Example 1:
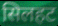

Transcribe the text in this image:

सिलहट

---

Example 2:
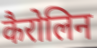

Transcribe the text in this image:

कैरोलिन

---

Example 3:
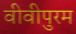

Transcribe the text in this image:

वीवीपुरम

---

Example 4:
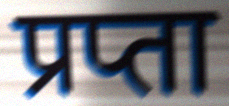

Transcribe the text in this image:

प्रप्ता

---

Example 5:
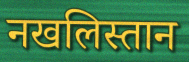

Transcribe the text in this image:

नखलिस्तान